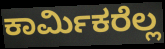
ಕಾರ್ಮಿಕರೆಲ್ಲ